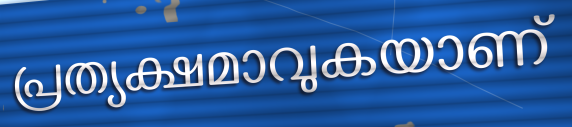
പ്രത്യക്ഷമാവുകയാണ്